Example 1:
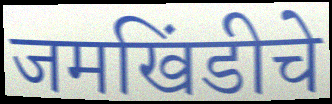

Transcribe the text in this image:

जमखिंडीचे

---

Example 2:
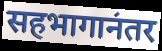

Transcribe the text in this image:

सहभागानंतर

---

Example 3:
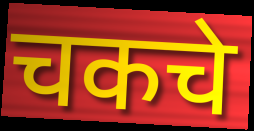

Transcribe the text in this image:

चकचे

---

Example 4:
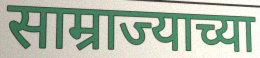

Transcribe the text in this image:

साम्राज्याच्या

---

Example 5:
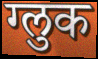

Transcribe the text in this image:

ग्लुक